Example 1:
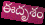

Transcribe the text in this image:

ఈదృశం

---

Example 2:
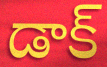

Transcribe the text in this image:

డాక్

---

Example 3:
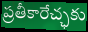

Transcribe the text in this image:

ప్రతీకారేచ్ఛకు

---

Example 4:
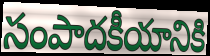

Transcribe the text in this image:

సంపాదకీయానికి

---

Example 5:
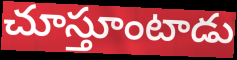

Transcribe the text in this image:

చూస్తూంటాడు